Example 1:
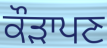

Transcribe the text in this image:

ਕੌੜਾਪਣ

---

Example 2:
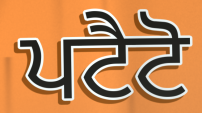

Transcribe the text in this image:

ਪਟੈਟੋ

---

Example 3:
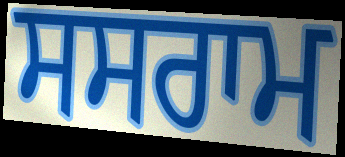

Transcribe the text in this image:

ਸਸਰਾਮ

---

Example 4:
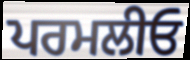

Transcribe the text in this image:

ਪਰਮਲੀਓ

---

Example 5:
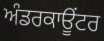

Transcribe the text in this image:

ਅੰਡਰਕਾਊਂਟਰ